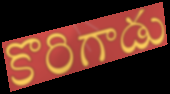
కొరిగాడు